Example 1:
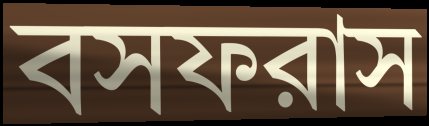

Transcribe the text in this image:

বসফরাস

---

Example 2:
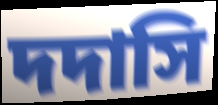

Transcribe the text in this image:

দদাসি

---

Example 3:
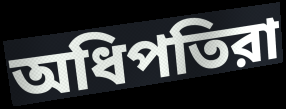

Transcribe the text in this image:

অধিপতিরা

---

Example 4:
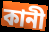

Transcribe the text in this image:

কানী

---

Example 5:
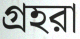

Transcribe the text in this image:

গ্রহরা